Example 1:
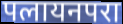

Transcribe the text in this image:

पलायनपरा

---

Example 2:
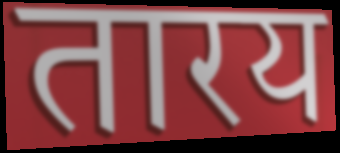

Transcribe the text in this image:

तारय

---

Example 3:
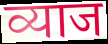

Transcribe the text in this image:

व्याज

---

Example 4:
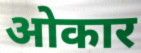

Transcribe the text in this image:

ओकार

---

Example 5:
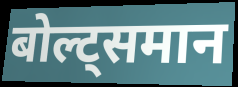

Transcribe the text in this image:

बोल्ट्समान